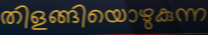
തിളങ്ങിയൊഴുകുന്ന